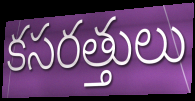
కసరత్తులు